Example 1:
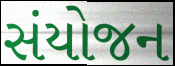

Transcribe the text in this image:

સંયોજન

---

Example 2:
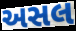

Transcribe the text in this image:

અસલ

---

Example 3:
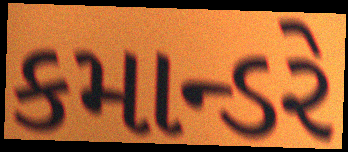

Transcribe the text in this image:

કમાન્ડરે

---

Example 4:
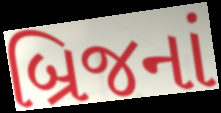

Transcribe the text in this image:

બ્રિજનાં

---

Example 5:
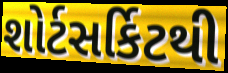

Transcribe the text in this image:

શોર્ટસર્કિટથી